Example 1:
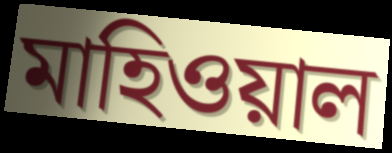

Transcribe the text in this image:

মাহিওয়াল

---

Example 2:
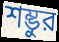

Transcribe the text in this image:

শম্ভুর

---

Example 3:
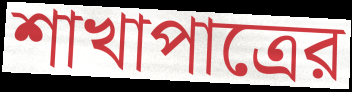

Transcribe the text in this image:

শাখাপাত্রের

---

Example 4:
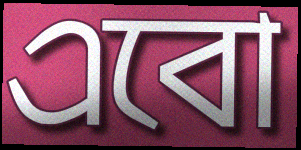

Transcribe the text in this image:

এবো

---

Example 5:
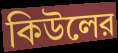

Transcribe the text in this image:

কিউলের